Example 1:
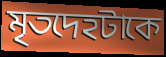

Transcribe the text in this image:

মৃতদেহটাকে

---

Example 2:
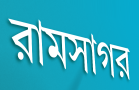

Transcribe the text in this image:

রামসাগর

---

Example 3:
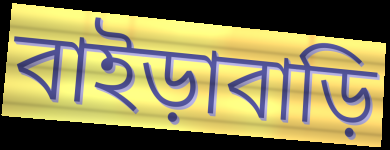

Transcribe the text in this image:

বাইড়াবাড়ি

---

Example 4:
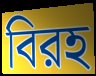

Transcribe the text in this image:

বিরহ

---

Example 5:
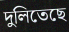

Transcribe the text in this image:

দুলিতেছে